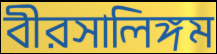
বীরসালিঙ্গম